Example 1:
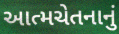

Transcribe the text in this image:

આત્મચેતનાનું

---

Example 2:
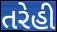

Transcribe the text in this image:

તરેહી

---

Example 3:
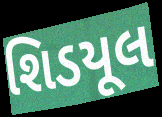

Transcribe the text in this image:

શિડયૂલ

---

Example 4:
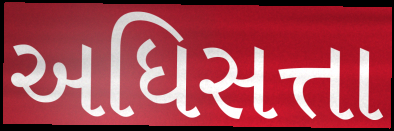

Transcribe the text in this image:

અધિસત્તા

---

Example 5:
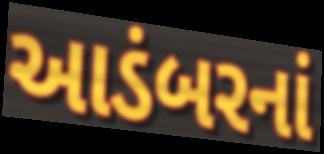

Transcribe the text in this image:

આડંબરનાં